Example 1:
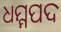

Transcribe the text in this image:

ଧମ୍ମପଦ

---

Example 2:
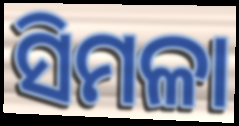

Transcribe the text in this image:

ସିମଳା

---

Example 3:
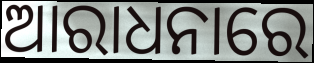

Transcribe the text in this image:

ଆରାଧନାରେ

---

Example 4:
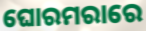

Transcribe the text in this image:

ଘୋରମରାରେ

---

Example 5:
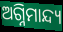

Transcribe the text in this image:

ଅଗ୍ନିମାନ୍ଦ୍ୟ